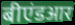
बीएंडआर